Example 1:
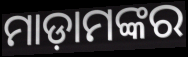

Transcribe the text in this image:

ମାଡ଼ାମଙ୍କର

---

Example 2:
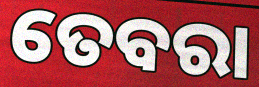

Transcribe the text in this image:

ତେବରା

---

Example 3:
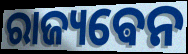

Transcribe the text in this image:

ରାଜ୍ୟଵେନ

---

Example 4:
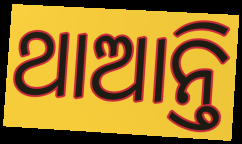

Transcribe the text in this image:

ଥାଆନ୍ତି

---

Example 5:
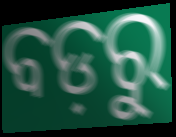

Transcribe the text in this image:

ବଡ଼ରୁ